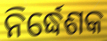
ନିର୍ଦ୍ଧେଶକ